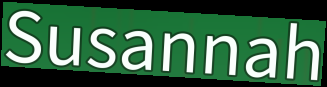
Susannah